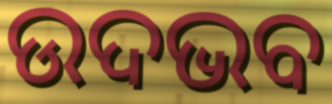
ଉଦଭବ